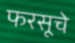
फरसूचे